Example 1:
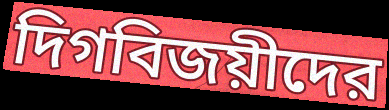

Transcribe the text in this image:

দিগবিজয়ীদের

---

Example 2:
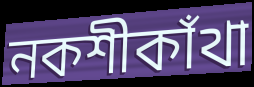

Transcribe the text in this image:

নকশীকাঁথা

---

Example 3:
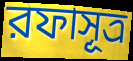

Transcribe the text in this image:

রফাসূত্র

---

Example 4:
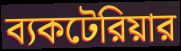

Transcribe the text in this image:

ব্যকটেরিয়ার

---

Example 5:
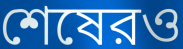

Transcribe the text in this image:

শেষেরও